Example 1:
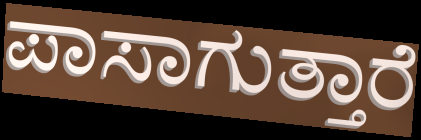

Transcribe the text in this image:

ಪಾಸಾಗುತ್ತಾರೆ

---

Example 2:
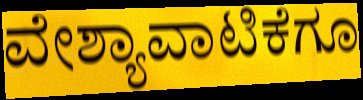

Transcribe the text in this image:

ವೇಶ್ಯಾವಾಟಿಕೆಗೂ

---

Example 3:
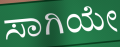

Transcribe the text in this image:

ಸಾಗಿಯೇ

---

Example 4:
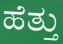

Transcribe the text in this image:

ಹೆತ್ತು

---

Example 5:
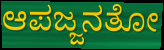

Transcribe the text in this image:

ಆಪಜ್ಜನತೋ